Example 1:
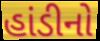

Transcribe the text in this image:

હાંડીનો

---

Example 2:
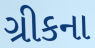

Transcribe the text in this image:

ગ્રીકના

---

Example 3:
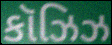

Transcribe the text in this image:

કૉઝિઝ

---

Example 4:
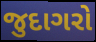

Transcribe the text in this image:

જુદાગરો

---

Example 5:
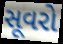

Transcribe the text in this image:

સૂવરો